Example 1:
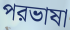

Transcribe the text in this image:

পরভাষা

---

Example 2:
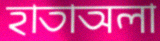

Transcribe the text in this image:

হাতাঅলা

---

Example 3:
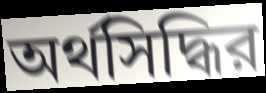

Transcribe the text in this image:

অর্থসিদ্ধির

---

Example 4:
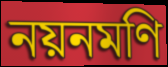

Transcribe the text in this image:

নয়নমণি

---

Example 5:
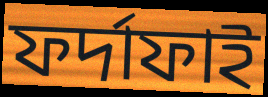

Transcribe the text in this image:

ফর্দাফাই